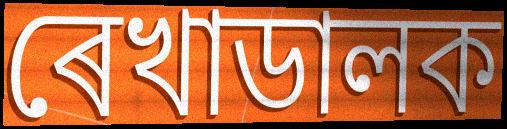
ৰেখাডালক